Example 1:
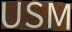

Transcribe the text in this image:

USM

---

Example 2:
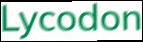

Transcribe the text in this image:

Lycodon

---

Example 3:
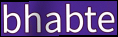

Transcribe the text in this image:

bhabte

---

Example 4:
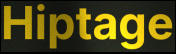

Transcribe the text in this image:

Hiptage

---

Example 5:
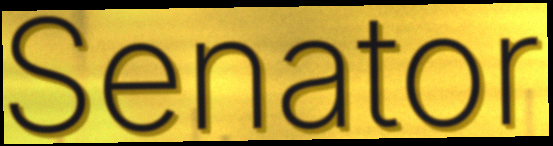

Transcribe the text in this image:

Senator